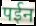
पईन